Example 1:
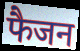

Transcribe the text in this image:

फैजन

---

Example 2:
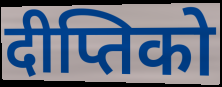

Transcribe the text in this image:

दीप्तिको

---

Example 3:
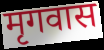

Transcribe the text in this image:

मृगवास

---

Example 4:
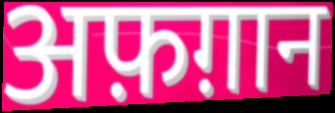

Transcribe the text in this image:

अफ़ग़ान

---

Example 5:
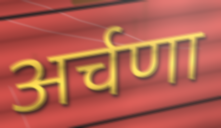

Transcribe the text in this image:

अर्चणा